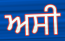
ਅਸੀ